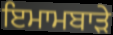
ਇਮਾਮਬਾੜੇ